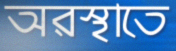
অৱস্থাতে